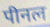
पीनल